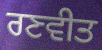
ਰਣਵੀਤ